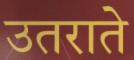
उतराते